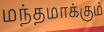
மந்தமாக்கும்